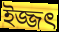
ইজ্জৎ